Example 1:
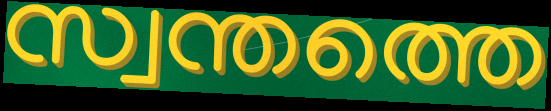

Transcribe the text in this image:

സ്വന്തത്തെ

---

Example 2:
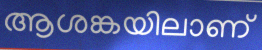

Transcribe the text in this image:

ആശങ്കയിലാണ്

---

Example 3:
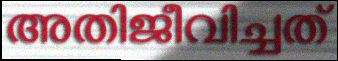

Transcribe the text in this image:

അതിജീവിച്ചത്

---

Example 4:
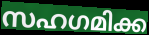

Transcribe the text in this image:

സഹഗമിക്ക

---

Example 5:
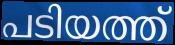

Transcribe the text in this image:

പടിയത്ത്